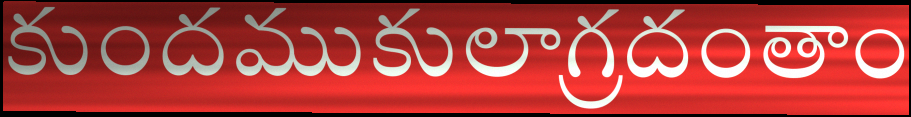
కుందముకులాగ్రదంతాం